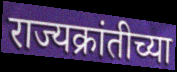
राज्यक्रांतीच्या